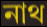
নাথ